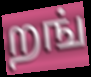
றங்